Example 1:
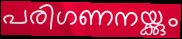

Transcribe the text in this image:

പരിഗണനയ്ക്കും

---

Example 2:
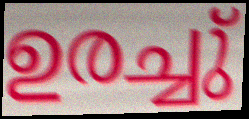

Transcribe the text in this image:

ഉരച്ചു്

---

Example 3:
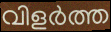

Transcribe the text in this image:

വിളർത്ത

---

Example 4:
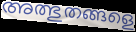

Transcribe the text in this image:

അത്ഭുതങ്ങളെ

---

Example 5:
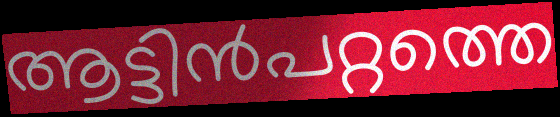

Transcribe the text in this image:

ആട്ടിൻപറ്റത്തെ